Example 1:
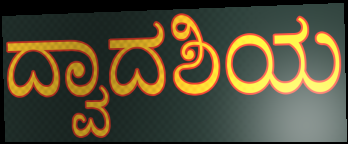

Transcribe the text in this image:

ದ್ವಾದಶಿಯ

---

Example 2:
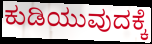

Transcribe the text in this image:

ಕುಡಿಯುವುದಕ್ಕೆ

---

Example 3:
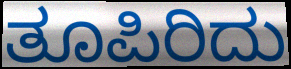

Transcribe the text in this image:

ತೂಪಿರಿದು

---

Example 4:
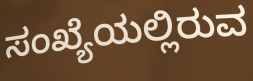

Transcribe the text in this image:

ಸಂಖ್ಯೆಯಲ್ಲಿರುವ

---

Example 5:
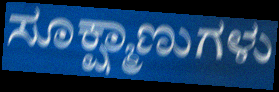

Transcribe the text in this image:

ಸೂಕ್ಷ್ಮಾಣುಗಳು